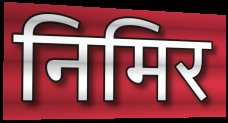
निमिर